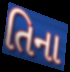
તિના